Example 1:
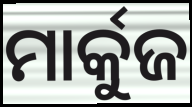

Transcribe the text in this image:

ମାର୍କୁଜ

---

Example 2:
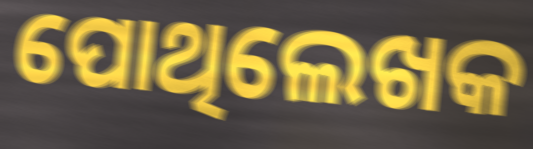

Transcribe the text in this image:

ପୋଥିଲେଖକ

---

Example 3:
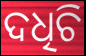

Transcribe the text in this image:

ଦଧିଚି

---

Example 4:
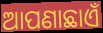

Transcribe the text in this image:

ଆପଣାଛାଏଁ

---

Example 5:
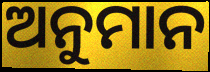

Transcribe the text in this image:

ଅନୁମାନ